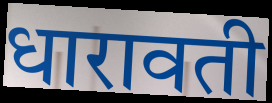
धारावती